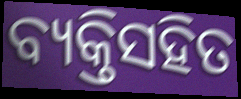
ବ୍ୟକ୍ତିସହିତ